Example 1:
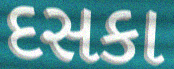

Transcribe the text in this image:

દસકા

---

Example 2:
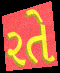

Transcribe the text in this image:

રતે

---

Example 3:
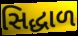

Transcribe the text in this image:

સિદ્ધાળ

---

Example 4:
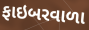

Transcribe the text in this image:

ફાઇબરવાળા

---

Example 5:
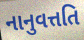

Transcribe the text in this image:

નાનુવત્તતિ